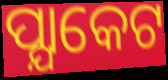
ପ୍ଯାକେଟ